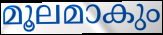
മൂലമാകും